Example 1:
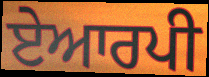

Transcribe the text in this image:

ਏਆਰਪੀ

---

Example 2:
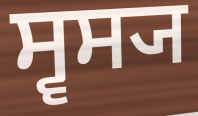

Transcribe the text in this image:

ਸ੍ਵਸ੍ਯ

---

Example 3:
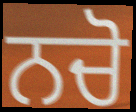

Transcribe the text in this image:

ਨਚੋ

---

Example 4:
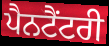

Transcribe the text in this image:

ਪੈਨਟੈਂਟਰੀ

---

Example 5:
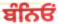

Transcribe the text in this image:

ਬੰਨਿਓਂ